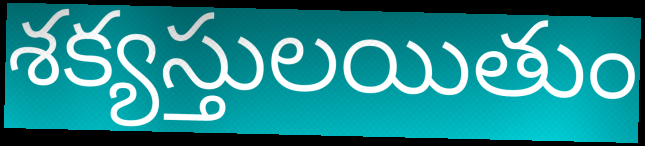
శక్యస్తులయితుం